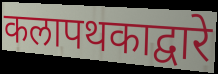
कलापथकाद्वारे